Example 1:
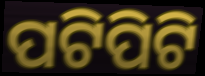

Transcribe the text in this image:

ପଟିପିଟି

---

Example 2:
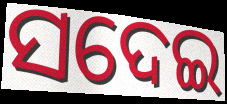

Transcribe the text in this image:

ସଦେଇ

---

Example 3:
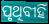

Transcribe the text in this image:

ପୃଥିବୀହିଁ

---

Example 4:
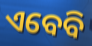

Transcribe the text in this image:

ଏବେବି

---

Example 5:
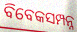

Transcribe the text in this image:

ବିବେକସମ୍ପନ୍ନ